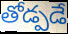
తోడ్పడే